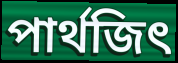
পার্থজিৎ